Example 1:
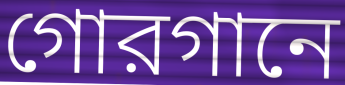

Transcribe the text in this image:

গোরগানে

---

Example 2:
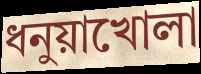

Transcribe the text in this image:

ধনুয়াখোলা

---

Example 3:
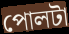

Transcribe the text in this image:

পোলটা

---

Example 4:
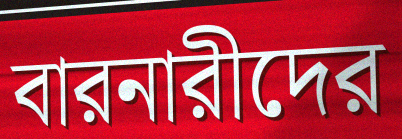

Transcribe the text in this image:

বারনারীদের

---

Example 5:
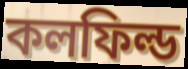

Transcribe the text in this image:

কলফিল্ড